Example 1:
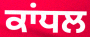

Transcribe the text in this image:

ਕਾਂਧਲ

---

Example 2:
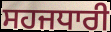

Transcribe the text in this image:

ਸਹਜਧਾਰੀ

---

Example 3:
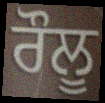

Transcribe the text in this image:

ਰੌਲੂ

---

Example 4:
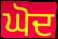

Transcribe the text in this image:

ਘੋਦ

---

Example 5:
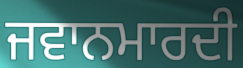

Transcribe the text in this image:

ਜਵਾਨਮਾਰਦੀ